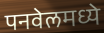
पनवेलमध्ये